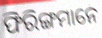
ଫିରିଙ୍ଗମାନେ